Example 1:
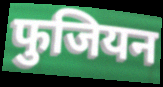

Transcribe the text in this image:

फुजियन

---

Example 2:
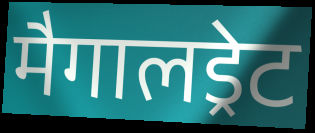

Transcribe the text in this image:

मैगालड्रेट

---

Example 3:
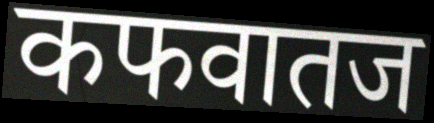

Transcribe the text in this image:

कफवातज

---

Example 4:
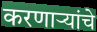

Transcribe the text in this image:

करणाऱ्यांचे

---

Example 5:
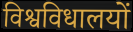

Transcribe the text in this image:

विश्वविधालयों